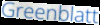
Greenblatt